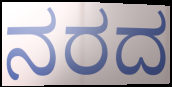
ನರದ